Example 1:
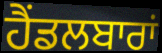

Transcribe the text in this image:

ਹੈਂਡਲਬਾਰਾਂ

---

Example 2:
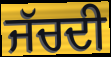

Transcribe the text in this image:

ਜੱਚਦੀ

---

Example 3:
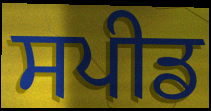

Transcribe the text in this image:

ਸਪੀਡ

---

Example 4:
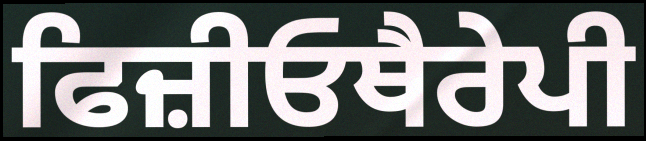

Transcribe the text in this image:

ਫਿਜ਼ੀਓਥੈਰੇਪੀ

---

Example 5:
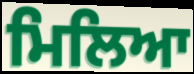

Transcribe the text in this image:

ਮਿਲਿਆ